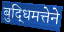
बुद्धिमत्तेने